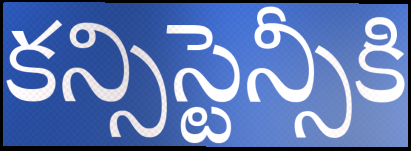
కన్సిస్టెన్సీకి